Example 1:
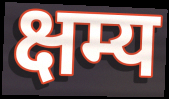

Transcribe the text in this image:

क्षम्य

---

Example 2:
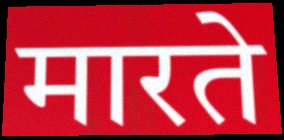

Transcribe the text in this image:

मारते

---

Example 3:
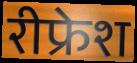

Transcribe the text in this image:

रीफ्रेश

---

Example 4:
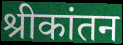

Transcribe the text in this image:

श्रीकांतन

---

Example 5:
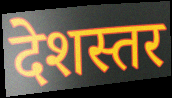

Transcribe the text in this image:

देशस्तर